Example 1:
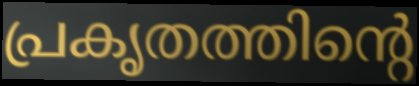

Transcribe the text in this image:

പ്രകൃതത്തിന്റെ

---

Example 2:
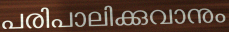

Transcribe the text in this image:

പരിപാലിക്കുവാനും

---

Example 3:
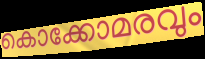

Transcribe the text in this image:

കൊക്കോമരവും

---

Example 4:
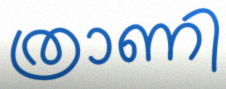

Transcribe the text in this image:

ത്രാണി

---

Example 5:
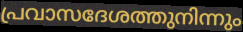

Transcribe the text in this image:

പ്രവാസദേശത്തുനിന്നും